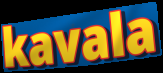
kavala